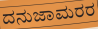
ದನುಜಾಮರರ